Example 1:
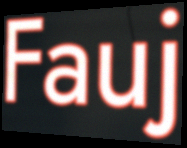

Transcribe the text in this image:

Fauj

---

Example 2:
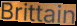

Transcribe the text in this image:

Brittain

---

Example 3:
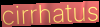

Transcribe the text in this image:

cirrhatus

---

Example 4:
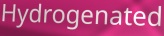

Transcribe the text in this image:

Hydrogenated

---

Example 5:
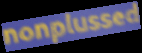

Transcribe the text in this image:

nonplussed